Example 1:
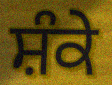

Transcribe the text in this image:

ਸ਼ੰਕੇ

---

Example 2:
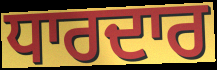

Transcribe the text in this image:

ਧਾਰਦਾਰ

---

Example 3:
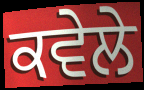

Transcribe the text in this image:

ਕਵੇਲੇ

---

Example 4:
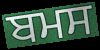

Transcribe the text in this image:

ਬਮਸ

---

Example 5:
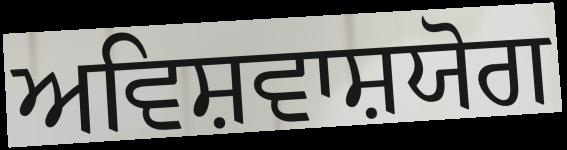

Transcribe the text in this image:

ਅਵਿਸ਼ਵਾਸ਼ਯੋਗ